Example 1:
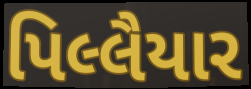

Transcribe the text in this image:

પિલ્લૈયાર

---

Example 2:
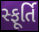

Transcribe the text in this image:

સ્ફૂર્તિ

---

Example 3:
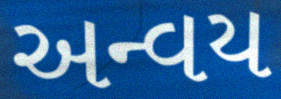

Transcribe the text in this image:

અન્વય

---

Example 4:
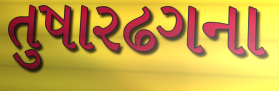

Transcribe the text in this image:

તુષારઢગના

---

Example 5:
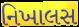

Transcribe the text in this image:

નિખાલસ